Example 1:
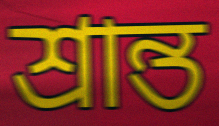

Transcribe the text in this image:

শ্রান্ত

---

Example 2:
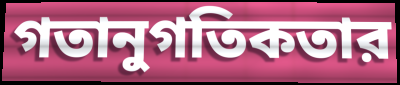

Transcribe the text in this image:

গতানুগতিকতার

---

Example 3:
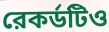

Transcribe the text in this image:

রেকর্ডটিও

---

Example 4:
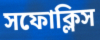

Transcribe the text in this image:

সফোক্লিস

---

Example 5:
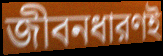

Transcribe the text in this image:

জীবনধারণই